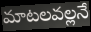
మాటలవల్లనే